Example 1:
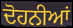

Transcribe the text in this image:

ਦੋਹਨੀਆਂ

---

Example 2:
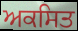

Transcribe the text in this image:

ਅਕਸਿਤ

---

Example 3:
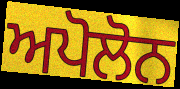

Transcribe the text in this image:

ਅਪੋਲੋਨ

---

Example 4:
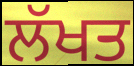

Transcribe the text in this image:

ਲੱਖਤ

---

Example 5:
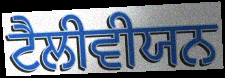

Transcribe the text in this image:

ਟੈਲੀਵੀਯਨ